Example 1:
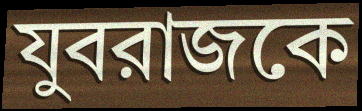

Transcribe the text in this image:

যুবরাজকে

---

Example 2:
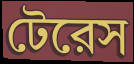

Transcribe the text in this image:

টেরেস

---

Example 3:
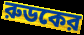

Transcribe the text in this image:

রুডকের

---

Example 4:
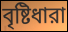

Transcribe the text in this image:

বৃষ্টিধারা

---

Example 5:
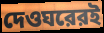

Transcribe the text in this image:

দেওঘরেরই